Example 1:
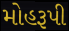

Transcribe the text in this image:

મોહરૂપી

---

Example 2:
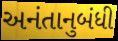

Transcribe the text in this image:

અનંતાનુબંધી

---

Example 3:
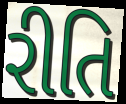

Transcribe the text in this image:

રીતિ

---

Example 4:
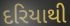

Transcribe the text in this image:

દરિયાથી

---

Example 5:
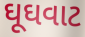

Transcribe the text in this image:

ઘૂઘવાટ